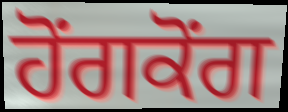
ਹੋਂਗਕੋਂਗ